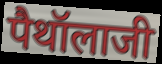
पैथॉलाजी